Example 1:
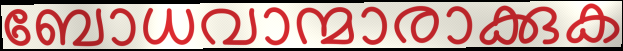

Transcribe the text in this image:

ബോധവാന്മാരാക്കുക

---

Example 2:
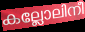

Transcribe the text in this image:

കല്ലോലിനീ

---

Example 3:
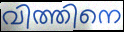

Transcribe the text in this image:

വിത്തിനെ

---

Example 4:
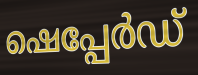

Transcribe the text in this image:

ഷെപ്പേർഡ്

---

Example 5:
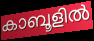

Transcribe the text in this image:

കാബൂളിൽ